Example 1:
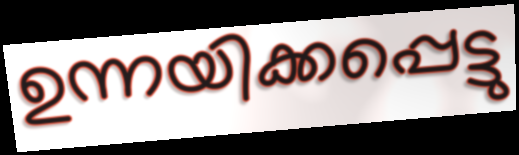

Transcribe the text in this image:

ഉന്നയിക്കപ്പെട്ടു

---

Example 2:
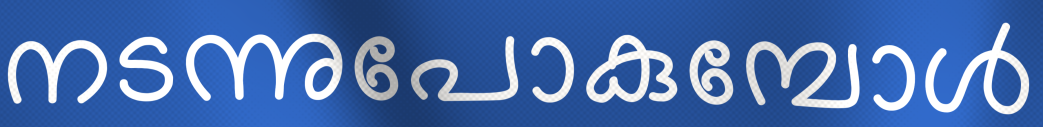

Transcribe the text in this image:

നടന്നുപോകുമ്പോൾ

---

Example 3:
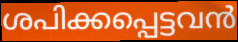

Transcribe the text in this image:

ശപിക്കപ്പെട്ടവൻ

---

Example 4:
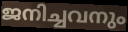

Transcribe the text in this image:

ജനിച്ചവനും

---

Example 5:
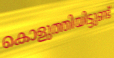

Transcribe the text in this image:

കൊളുത്തിയിട്ടുണ്ട്